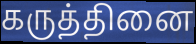
கருத்தினை